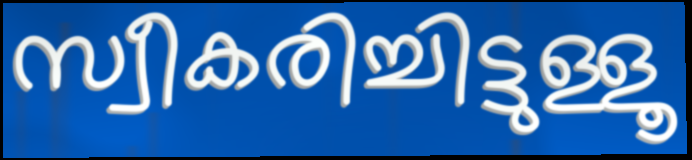
സ്വീകരിച്ചിട്ടുള്ളൂ